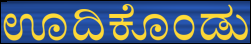
ಊದಿಕೊಂಡು